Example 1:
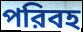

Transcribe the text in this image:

পরিবহ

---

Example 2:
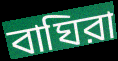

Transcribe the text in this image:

বাঘিরা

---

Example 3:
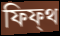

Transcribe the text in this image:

ফিফ্থ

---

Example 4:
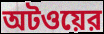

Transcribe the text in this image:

অটওয়ের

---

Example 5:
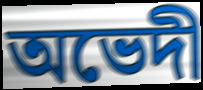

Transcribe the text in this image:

অভেদী